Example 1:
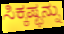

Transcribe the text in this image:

ಸಿಕ್ಕಷ್ಟನ್ನು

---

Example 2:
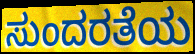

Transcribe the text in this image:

ಸುಂದರತೆಯ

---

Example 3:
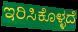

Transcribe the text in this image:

ಇರಿಸಿಕೊಳ್ಳದೆ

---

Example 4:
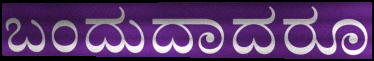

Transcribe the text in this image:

ಬಂದುದಾದರೂ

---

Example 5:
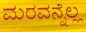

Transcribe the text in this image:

ಮರವನ್ನೆಲ್ಲ